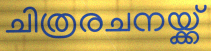
ചിത്രരചനയ്ക്ക്